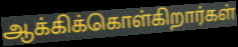
ஆக்கிக்கொள்கிறார்கள்